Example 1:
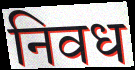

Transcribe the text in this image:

निवध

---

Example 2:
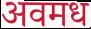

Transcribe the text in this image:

अवमध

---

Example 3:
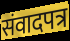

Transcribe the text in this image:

संवादपत्र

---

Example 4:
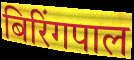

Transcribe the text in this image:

बिरिंगपाल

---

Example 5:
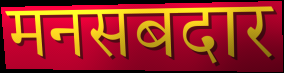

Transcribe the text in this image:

मनसबदार